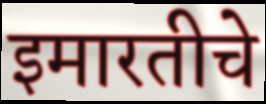
इमारतीचे